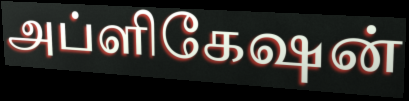
அப்ளிகேஷன்